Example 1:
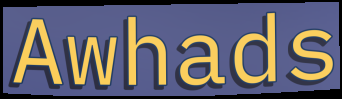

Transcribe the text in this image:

Awhads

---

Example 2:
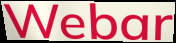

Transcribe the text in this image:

Webar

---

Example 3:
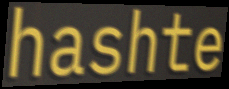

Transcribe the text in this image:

hashte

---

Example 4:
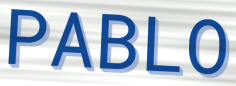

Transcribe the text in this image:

PABLO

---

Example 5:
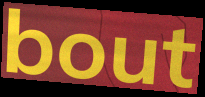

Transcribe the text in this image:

bout